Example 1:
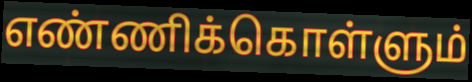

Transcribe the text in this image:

எண்ணிக்கொள்ளும்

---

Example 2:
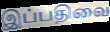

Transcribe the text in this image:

இப்பதிவை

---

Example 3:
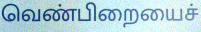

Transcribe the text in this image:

வெண்பிறையைச்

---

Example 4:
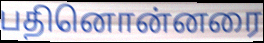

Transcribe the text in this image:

பதினொன்னரை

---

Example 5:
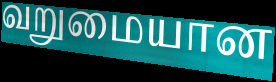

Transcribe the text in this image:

வறுமையான